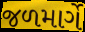
જળમાર્ગે